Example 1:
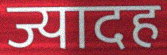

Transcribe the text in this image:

ज्यादह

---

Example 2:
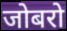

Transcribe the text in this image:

जोबरो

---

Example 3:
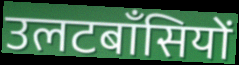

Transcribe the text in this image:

उलटबाँसियों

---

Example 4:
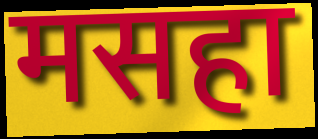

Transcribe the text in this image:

मसहा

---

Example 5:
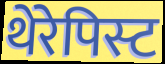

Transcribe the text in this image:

थेरेपिस्‍ट